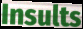
Insults